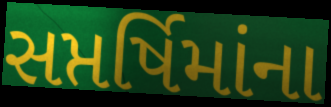
સપ્તર્ષિમાંના